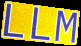
LLM